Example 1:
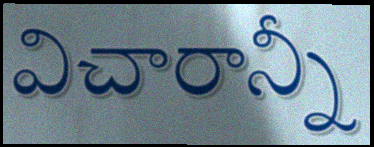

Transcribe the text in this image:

విచారాన్నీ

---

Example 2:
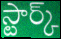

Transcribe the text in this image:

స్టార్క్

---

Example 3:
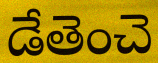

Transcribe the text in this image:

డేతెంచె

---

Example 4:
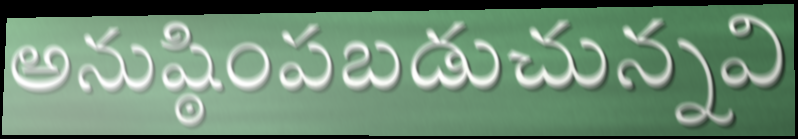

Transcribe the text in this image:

అనుష్ఠింపబడుచున్నవి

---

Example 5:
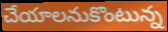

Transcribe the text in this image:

చేయాలనుకొంటున్న